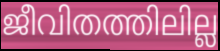
ജീവിതത്തിലില്ല